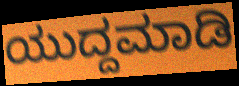
ಯುದ್ದಮಾಡಿ